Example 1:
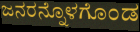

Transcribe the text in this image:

ಜನರನ್ನೊಳಗೊಂಡ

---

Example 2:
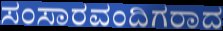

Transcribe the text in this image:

ಸಂಸಾರವಂದಿಗರಾದ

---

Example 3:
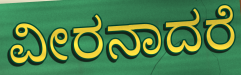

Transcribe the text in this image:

ವೀರನಾದರೆ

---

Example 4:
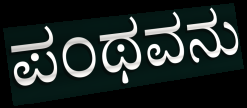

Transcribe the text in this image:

ಪಂಥವನು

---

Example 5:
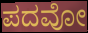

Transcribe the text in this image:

ಪದವೋ